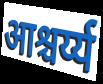
आश्चर्य्य